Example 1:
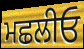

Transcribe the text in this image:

ਮਛਲੀਓ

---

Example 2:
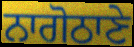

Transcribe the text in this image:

ਨਾਗੋਠਾਣੇ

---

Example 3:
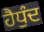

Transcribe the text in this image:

ਹੈਧੁੰਦ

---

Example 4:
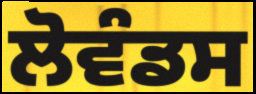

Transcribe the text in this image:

ਲੋਵੰਡਸ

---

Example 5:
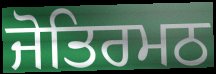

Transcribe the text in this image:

ਜੋਤਿਰਮਠ